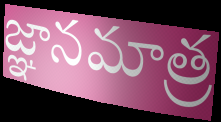
జ్ఞానమాత్ర